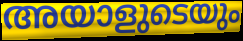
അയാളുടെയും